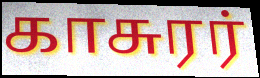
காசுரர்